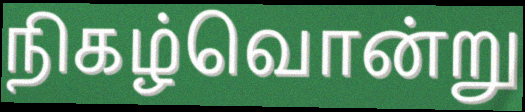
நிகழ்வொன்று